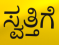
ಸ್ವತ್ತಿಗೆ